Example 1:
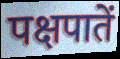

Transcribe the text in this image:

पक्षपातें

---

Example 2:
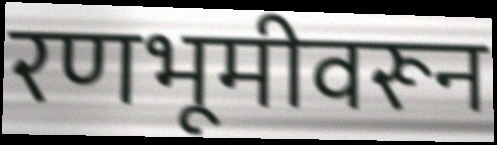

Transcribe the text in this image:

रणभूमीवरून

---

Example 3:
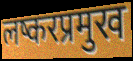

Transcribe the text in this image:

लष्करप्रमुख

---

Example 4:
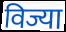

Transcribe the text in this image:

विज्या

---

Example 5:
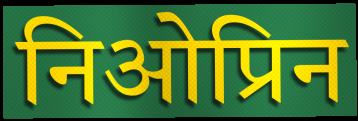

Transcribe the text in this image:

निओप्रिन